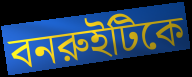
বনরুইটিকে